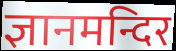
ज्ञानमन्दिर